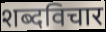
शब्दविचार